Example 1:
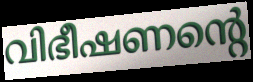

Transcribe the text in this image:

വിഭീഷണന്റെ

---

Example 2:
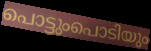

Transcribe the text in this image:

പൊട്ടുംപൊടിയും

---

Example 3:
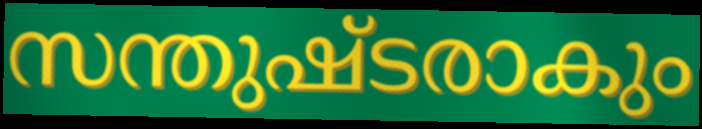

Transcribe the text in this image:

സന്തുഷ്ടരാകും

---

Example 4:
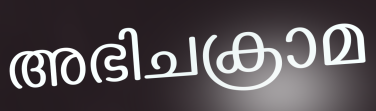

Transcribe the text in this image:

അഭിചക്രാമ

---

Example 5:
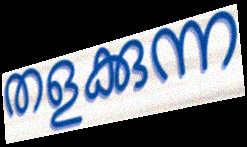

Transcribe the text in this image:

തളക്കുന്ന